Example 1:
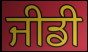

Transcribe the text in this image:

ਜੀਡੀ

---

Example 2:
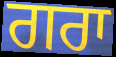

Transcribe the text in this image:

ਗਰਾ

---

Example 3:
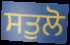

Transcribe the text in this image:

ਸਤੁਲੋ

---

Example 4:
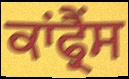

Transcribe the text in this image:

ਕਾਂਫ੍ਰੈਂਸ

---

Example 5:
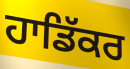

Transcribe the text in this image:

ਹਾਡਿੱਕਰ